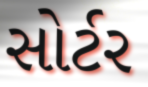
સોર્ટર